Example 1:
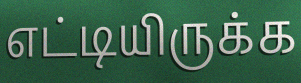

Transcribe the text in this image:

எட்டியிருக்க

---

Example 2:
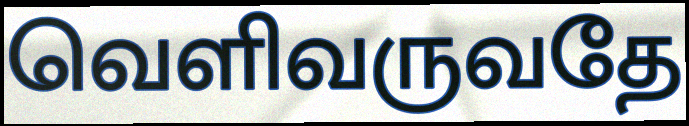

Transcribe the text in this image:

வெளிவருவதே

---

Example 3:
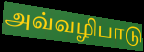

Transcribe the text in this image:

அவ்வழிபாடு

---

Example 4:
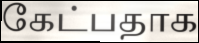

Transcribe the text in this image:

கேட்பதாக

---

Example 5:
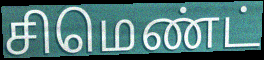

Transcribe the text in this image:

சிமெண்ட்